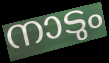
നാടും